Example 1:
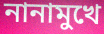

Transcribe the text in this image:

নানামুখে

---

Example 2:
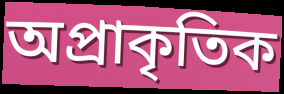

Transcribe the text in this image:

অপ্রাকৃতিক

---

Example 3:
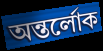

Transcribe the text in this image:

অন্তর্লোক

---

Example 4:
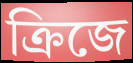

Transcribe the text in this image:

ক্রিজে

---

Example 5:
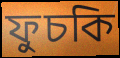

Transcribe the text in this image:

ফুচকি